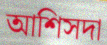
আশিসদা